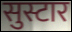
सुस्टार